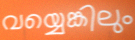
വയ്യെങ്കിലും